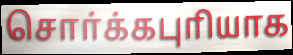
சொர்க்கபுரியாக